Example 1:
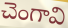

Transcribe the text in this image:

చెంగావి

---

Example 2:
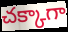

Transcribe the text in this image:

చక్కాగా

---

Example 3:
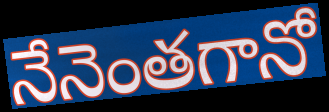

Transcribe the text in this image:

నేనెంతగానో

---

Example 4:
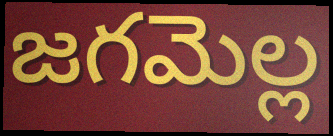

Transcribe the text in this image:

జగమెల్ల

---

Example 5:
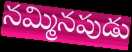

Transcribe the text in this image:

నమ్మినపుడు